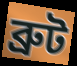
ব্রুট